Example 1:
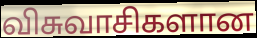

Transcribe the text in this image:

விசுவாசிகளான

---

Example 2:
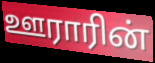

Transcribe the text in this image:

ஊராரின்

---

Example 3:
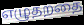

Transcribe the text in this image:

எழுதறதை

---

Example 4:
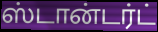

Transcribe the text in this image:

ஸ்டான்டர்ட்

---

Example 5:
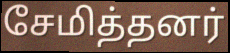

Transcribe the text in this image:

சேமித்தனர்